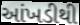
આંખડીથી